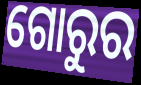
ଗୋରୁର